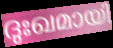
ദുഃഖമായി